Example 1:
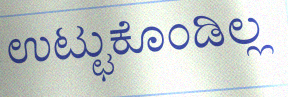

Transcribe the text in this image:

ಉಟ್ಟುಕೊಂಡಿಲ್ಲ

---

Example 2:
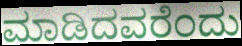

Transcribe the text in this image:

ಮಾಡಿದವರೆಂದು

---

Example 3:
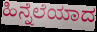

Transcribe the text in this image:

ಹಿನ್ನೆಲೆಯಾದ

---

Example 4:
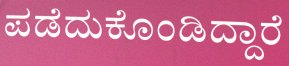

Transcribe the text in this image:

ಪಡೆದುಕೊಂಡಿದ್ದಾರೆ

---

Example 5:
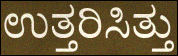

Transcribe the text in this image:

ಉತ್ತರಿಸಿತ್ತು